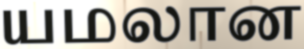
யமலான